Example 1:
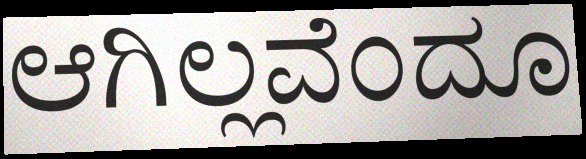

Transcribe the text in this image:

ಆಗಿಲ್ಲವೆಂದೂ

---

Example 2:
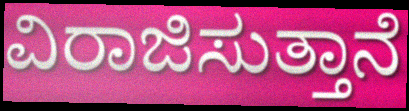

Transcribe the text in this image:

ವಿರಾಜಿಸುತ್ತಾನೆ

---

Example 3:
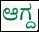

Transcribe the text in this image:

ಆಗ್ದ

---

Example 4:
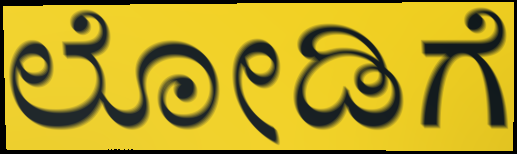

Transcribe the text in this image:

ಲೋಡಿಗೆ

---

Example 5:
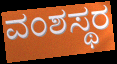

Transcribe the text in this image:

ವಂಶಸ್ಥರ